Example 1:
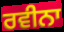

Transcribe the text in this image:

ਰਵੀਨਾ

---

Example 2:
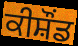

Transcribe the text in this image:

ਕੀਸ਼ੌਂਡ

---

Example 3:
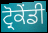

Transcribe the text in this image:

ਟ੍ਰੋਕੇਂਡੀ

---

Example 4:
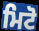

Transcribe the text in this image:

ਮਿਟੋ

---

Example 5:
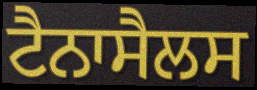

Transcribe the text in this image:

ਟੈਨਾਸੈਲਸ